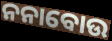
ନନାବୋଉ